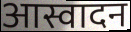
आस्वादन